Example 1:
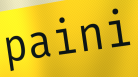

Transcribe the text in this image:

paini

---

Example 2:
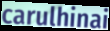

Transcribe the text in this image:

carulhinai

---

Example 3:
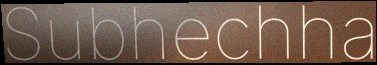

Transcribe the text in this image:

Subhechha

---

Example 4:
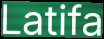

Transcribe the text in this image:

Latifa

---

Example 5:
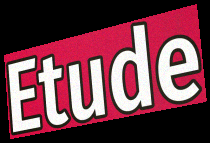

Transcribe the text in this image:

Etude